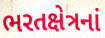
ભરતક્ષેત્રનાં